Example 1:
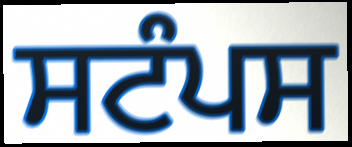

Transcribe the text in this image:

ਸਟੰਪਸ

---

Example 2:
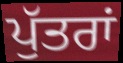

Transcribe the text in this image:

ਪੁੱਤਰਾਂ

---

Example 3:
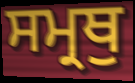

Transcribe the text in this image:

ਸਮ੍ਰਥੁ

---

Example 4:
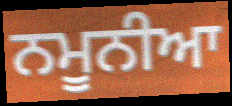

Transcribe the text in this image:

ਨਮੂਨੀਆ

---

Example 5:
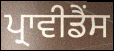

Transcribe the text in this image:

ਪ੍ਰਾਵੀਡੈਂਸ